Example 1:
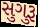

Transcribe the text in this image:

સુગુરૂ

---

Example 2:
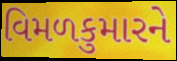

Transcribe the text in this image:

વિમળકુમારને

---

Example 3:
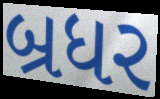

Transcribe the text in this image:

બ્રધર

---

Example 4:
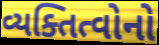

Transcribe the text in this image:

વ્યક્તિત્વોનો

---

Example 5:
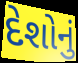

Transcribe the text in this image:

દેશોનું